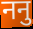
ननु